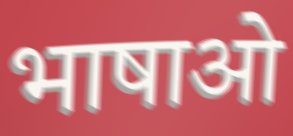
भाषाओ